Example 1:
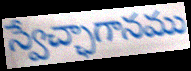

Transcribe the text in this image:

స్వేచ్ఛాగానము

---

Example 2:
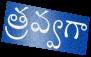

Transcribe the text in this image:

త్రవ్వగా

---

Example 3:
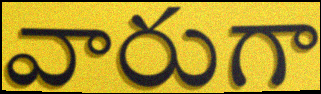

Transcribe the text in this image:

వారుగా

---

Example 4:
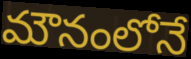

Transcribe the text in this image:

మౌనంలోనే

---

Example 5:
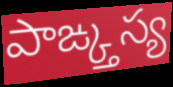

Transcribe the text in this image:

పాఙ్క్తస్య